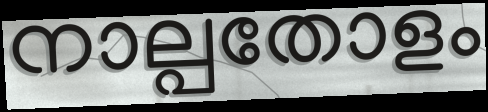
നാല്പതോളം